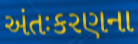
અંતઃકરણના